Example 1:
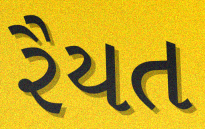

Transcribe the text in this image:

રૈયત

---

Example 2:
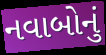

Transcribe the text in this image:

નવાબોનું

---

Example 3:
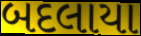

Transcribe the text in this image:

બદલાયા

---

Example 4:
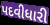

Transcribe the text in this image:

પદવીધારી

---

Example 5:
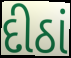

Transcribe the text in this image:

દીઠાં